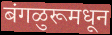
बंगळुरूमधून